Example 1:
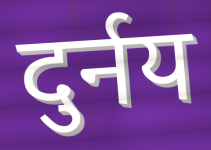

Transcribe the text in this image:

दुर्नय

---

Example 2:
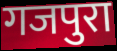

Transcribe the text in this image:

गजपुरा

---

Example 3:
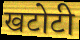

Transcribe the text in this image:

खटोटी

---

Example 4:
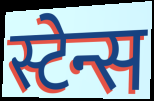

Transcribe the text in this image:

स्टेन्स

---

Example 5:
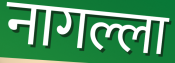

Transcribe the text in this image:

नागल्ला